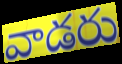
వాడరు